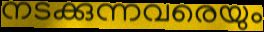
നടക്കുന്നവരെയും